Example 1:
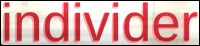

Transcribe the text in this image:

individer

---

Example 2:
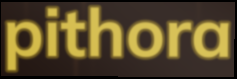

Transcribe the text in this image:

pithora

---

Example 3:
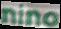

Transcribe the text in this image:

nino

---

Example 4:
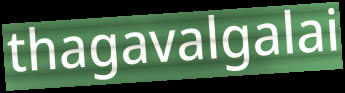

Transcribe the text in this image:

thagavalgalai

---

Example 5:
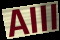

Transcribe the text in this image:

AIII